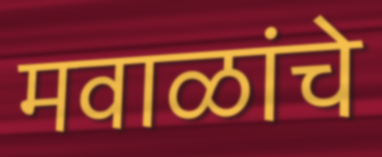
मवाळांचे